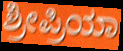
ಶ್ರೀಪ್ರಿಯಾ